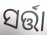
ସର୍ତ୍ତା